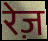
रेज़